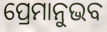
ପ୍ରେମାନୁଭବ